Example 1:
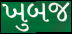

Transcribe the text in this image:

ખુબજ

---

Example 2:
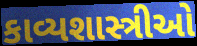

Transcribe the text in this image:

કાવ્યશાસ્ત્રીઓ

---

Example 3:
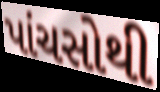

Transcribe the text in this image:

પાંચસોથી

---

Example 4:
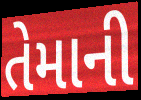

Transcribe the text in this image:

તેમાની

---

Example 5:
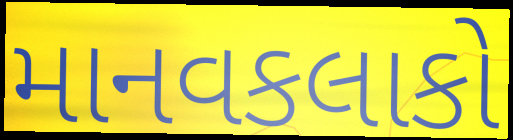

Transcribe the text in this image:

માનવકલાકો